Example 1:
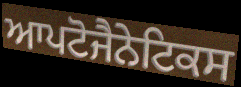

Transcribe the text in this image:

ਆਪਟੋਜੈਨੇਟਿਕਸ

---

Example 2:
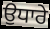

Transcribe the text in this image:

ਉਧਾਰੇ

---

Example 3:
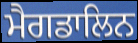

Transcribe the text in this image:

ਮੈਗਡਾਲਿਨ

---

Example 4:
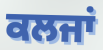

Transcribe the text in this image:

ਕਲਜਾਂ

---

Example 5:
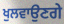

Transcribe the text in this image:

ਖੁਲਵਾਉਣਗੇ